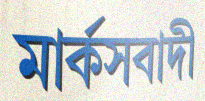
মার্কসবাদী